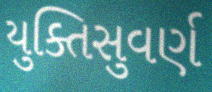
યુક્તિસુવર્ણ